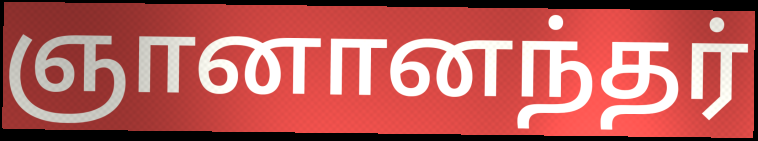
ஞானானந்தர்